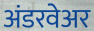
अंडरवेअर